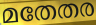
മതേതര